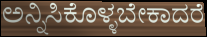
ಅನ್ನಿಸಿಕೊಳ್ಳಬೇಕಾದರೆ